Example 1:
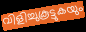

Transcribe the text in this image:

വിളിച്ചുകൂട്ടുകയും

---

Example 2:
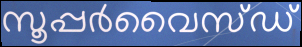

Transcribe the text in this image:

സൂപ്പർവൈസ്ഡ്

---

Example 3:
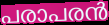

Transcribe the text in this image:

പരാപരൻ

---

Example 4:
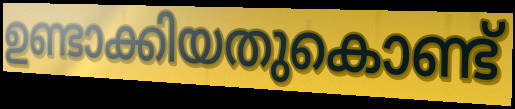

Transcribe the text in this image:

ഉണ്ടാക്കിയതുകൊണ്ട്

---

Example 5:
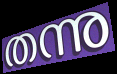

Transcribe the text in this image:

തന്നു